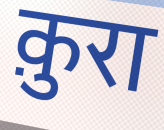
क़ुरा